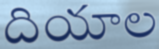
దియాల